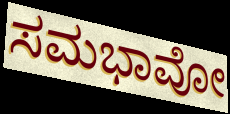
ಸಮಭಾವೋ